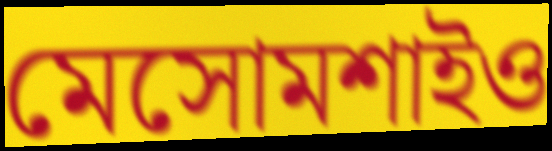
মেসোমশাইও